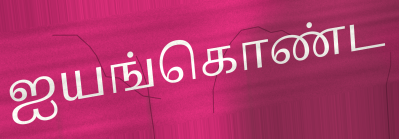
ஐயங்கொண்ட